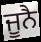
ਜੂਨੈ